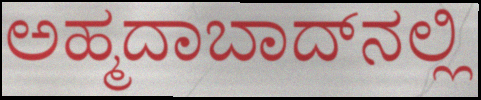
ಅಹ್ಮದಾಬಾದ್‍ನಲ್ಲಿ